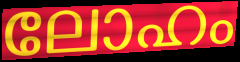
ലോഹം